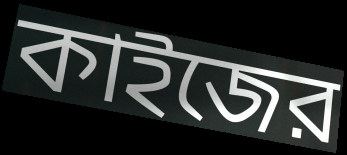
কাইজের